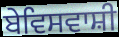
ਬੇਵਿਸਵਾਸ਼ੀ